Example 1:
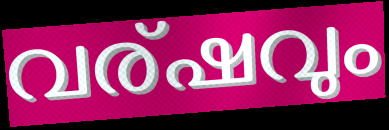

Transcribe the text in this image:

വര്ഷവും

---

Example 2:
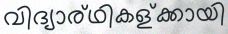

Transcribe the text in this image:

വിദ്യാര്ഥികള്ക്കായി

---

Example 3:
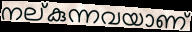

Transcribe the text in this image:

നല്കുന്നവയാണ്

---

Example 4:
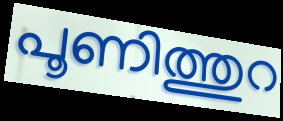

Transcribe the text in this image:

പൂണിത്തുറ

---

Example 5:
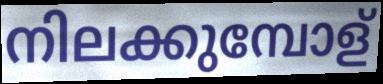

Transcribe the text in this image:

നിലക്കുമ്പോള്